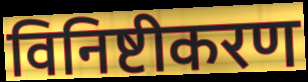
विनिष्टीकरण